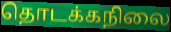
தொடக்கநிலை